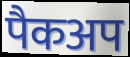
पैकअप